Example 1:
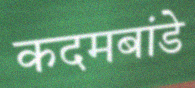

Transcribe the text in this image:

कदमबांडे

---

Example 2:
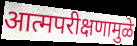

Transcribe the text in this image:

आत्मपरीक्षणामुळे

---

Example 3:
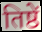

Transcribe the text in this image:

तिष्ठें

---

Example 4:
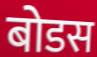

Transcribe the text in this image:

बोडस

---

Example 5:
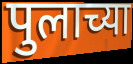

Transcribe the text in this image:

पुलाच्या